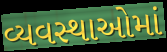
વ્યવસ્થાઓમાં